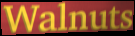
Walnuts